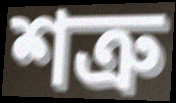
শত্রু